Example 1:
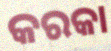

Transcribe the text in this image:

କରକା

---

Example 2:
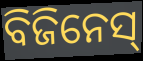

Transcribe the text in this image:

ବିଜିନେସ୍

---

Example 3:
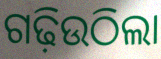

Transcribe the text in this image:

ଗଢ଼ିଉଠିଲା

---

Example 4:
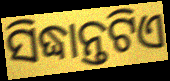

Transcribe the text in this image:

ସିଦ୍ଧାନ୍ତଟିଏ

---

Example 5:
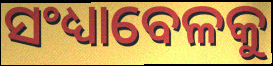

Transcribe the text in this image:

ସଂଧ୍ୟାବେଳକୁ